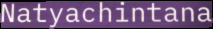
Natyachintana